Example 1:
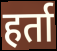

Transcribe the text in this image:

हर्ता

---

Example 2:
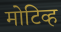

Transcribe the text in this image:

मोटिव्ह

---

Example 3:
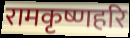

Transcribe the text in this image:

रामकृष्णहरि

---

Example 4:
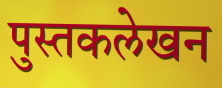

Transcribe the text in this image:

पुस्तकलेखन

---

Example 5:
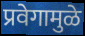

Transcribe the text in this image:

प्रवेगामुळे